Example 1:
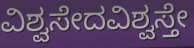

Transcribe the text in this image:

ವಿಶ್ವಸೇದವಿಶ್ವಸ್ತೇ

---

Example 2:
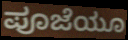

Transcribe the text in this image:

ಪೂಜೆಯೂ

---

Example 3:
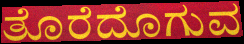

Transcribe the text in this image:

ತೊರೆದೊಗುವ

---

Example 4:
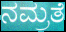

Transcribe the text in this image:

ನಮ್ರತೆ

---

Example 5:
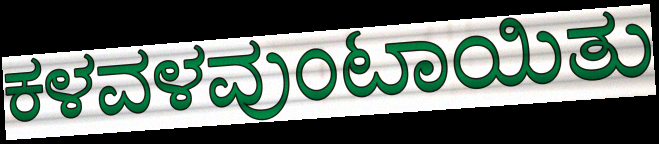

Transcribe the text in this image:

ಕಳವಳವುಂಟಾಯಿತು